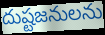
దుష్టజనులను